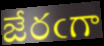
జేరఁగా